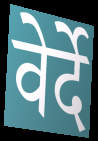
वेर्दे